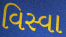
વિસ્વા